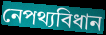
নেপথ্যবিধান